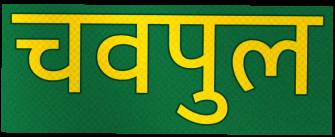
चवपुल